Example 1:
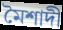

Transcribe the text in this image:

মৈশাদী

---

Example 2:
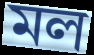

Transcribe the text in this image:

মল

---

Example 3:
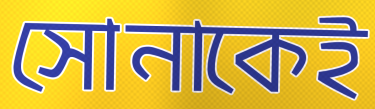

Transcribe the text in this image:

সোনাকেই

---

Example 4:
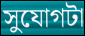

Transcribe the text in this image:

সুযোগটা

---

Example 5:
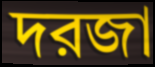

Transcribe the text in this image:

দরজা